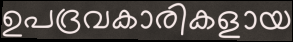
ഉപദ്രവകാരികളായ